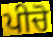
ਪੀਚੋ